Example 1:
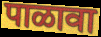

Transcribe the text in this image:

पाळावा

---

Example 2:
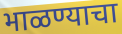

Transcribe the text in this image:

भाळण्याचा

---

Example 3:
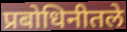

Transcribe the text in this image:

प्रबोधिनीतले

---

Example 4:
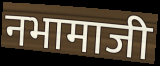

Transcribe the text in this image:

नभामाजी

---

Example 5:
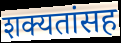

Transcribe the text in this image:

शक्यतांसह